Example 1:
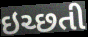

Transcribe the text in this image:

ઇચ્છતી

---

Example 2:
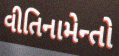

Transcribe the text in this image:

વીતિનામેન્તો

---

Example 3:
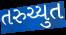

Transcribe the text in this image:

તરુચ્યુત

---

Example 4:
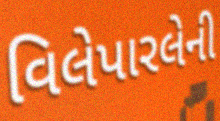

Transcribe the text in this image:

વિલેપારલેની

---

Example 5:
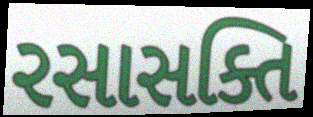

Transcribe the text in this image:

રસાસક્તિ